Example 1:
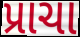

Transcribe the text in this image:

પ્રાચા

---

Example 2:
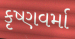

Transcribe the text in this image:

કૃષ્ણવર્મા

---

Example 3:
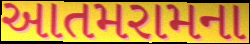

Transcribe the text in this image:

આતમરામના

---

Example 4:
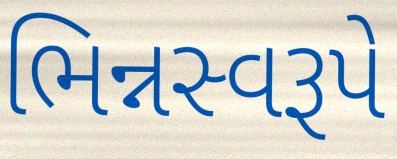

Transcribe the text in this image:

ભિન્નસ્વરૂપે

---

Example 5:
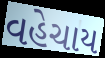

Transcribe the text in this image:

વહેચાય